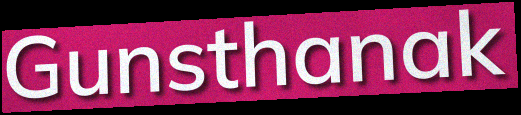
Gunsthanak